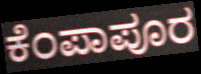
ಕೆಂಪಾಪೂರ